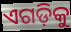
ଏଗଡ଼ିକୁ